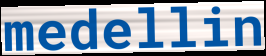
medellin